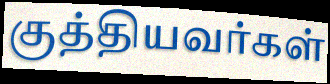
குத்தியவர்கள்